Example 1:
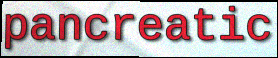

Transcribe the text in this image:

pancreatic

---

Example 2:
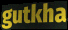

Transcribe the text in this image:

gutkha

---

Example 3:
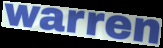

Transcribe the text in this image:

warren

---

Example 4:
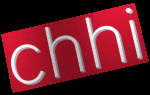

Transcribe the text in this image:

chhi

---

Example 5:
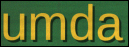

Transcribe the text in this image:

umda